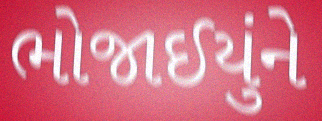
ભોજાઈયુંને